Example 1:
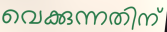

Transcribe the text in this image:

വെക്കുന്നതിന്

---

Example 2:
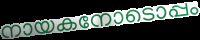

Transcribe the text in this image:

നായകനോടൊപ്പം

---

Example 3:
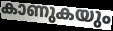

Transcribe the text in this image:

കാണുകയും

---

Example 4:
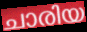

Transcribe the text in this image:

ചാരിയ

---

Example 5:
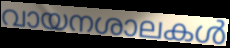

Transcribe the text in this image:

വായനശാലകൾ